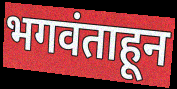
भगवंताहून